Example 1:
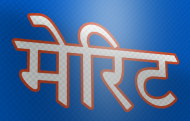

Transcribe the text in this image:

मेरिट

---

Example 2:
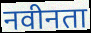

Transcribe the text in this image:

नवीनता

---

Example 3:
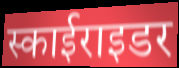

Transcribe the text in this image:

स्काईराइडर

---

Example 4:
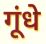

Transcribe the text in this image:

गूंधे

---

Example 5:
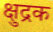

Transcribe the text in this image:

क्षुद्रक